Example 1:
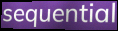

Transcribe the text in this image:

sequential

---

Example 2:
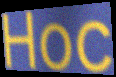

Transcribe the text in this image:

Hoc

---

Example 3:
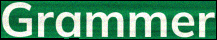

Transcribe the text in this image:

Grammer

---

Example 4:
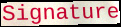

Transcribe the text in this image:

Signature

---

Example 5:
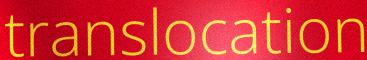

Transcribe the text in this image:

translocation